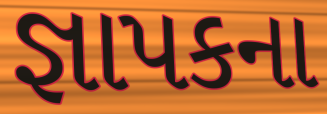
જ્ઞાપકના